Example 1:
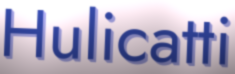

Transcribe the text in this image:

Hulicatti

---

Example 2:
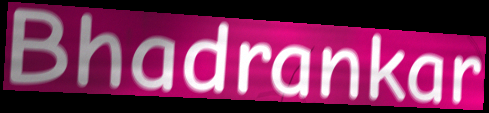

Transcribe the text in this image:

Bhadrankar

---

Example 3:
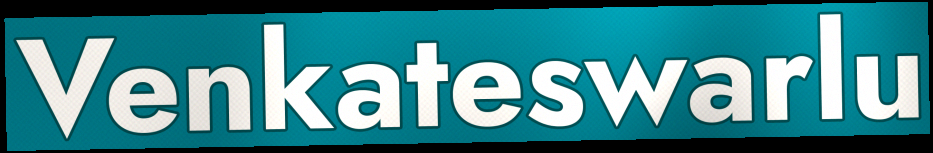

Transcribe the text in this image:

Venkateswarlu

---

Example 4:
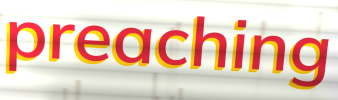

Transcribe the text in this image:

preaching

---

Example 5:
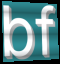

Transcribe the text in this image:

bf